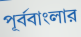
পূর্ববাংলার